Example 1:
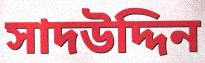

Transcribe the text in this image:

সাদউদ্দিন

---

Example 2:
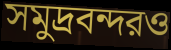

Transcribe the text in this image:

সমুদ্রবন্দরও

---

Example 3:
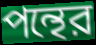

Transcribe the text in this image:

পন্থের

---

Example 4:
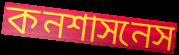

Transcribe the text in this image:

কনশাসনেস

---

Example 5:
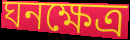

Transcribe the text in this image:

ঘনক্ষেত্র